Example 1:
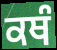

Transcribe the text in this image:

ਕਥੰ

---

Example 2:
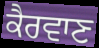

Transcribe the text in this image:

ਕੈਰਵਾਣ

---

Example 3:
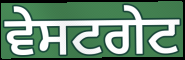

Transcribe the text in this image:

ਵੇਸਟਗੇਟ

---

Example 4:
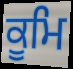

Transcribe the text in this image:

ਕੂਮਿ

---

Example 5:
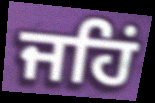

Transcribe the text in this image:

ਜਹਿਂ